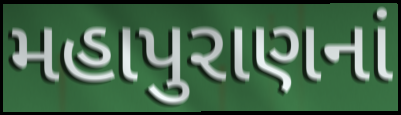
મહાપુરાણનાં